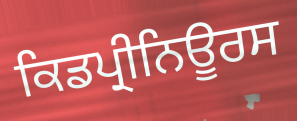
ਕਿਡਪ੍ਰੀਨਿਊਰਸ